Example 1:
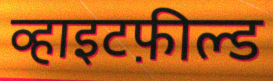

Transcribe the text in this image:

व्हाइटफ़ील्ड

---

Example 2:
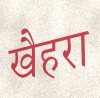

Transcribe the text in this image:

खैहरा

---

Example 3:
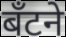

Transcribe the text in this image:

बँटने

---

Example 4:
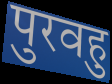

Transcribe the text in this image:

पुरवहु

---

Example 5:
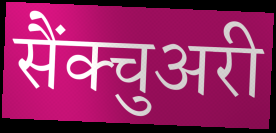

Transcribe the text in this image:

सैंक्चुअरी